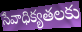
సేవాధిక్యతలకు